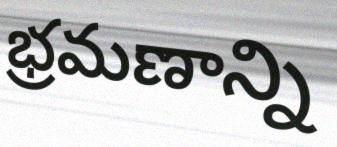
భ్రమణాన్ని